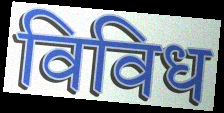
विविध